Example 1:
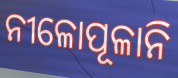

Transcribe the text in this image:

ନୀଳୋପୂଳାନି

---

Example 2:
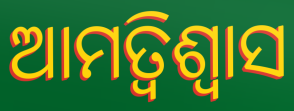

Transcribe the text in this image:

ଆମତ୍ବିଶ୍ୱାସ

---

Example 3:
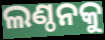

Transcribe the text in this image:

ଲଣ୍ଠନକୁ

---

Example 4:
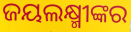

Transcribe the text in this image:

ଜୟଲକ୍ଷ୍ମୀଙ୍କର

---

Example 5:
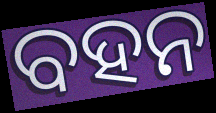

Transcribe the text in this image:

ବହନ